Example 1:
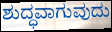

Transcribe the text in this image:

ಶುದ್ಧವಾಗುವುದು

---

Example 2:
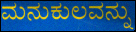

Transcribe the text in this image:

ಮನುಕುಲವನ್ನು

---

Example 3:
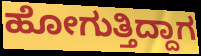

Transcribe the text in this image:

ಹೋಗುತ್ತಿದ್ದಾಗ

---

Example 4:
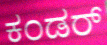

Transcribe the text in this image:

ಕಂಡರ್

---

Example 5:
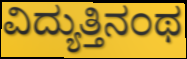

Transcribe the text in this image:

ವಿದ್ಯುತ್ತಿನಂಥ